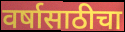
वर्षासाठीचा